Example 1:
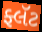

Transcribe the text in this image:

ફ્લૅટ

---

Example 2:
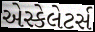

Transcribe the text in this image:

એસ્કેલેટર્સ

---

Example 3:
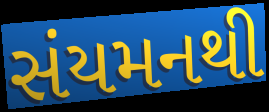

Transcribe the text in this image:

સંયમનથી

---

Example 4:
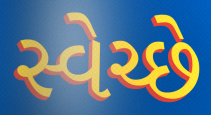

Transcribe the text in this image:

સ્વેચ્છે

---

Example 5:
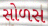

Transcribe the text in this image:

સોળસ